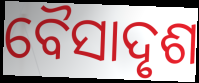
ବୈସାଦୃଶ